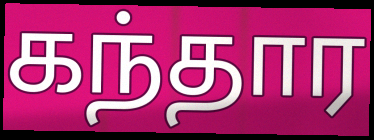
கந்தார